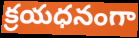
క్రయధనంగా